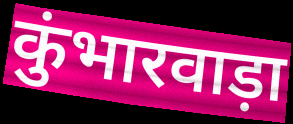
कुंभारवाड़ा